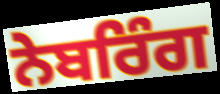
ਨੇਬਰਿੰਗ